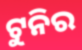
ଟୁନିର